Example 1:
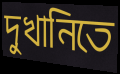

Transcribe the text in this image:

দুখানিতে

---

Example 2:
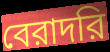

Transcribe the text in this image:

বেরাদরি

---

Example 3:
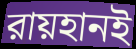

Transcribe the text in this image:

রায়হানই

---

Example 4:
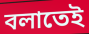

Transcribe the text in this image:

বলাতেই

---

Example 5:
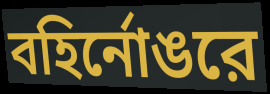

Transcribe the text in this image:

বহির্নোঙরে